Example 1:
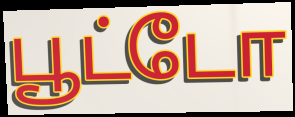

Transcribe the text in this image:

பூட்டோ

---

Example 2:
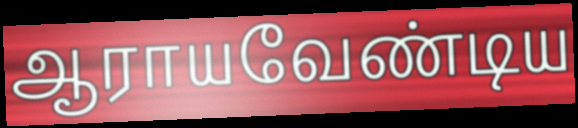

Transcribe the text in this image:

ஆராயவேண்டிய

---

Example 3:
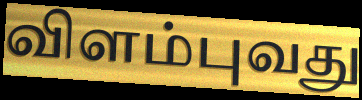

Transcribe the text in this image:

விளம்புவது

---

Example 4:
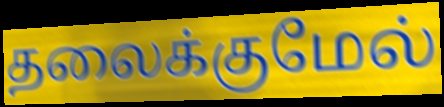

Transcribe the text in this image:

தலைக்குமேல்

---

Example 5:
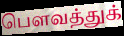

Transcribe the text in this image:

பௌவத்துக்